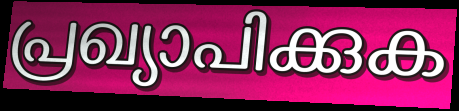
പ്രഖ്യാപിക്കുക